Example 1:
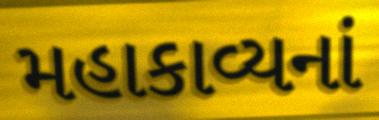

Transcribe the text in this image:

મહાકાવ્યનાં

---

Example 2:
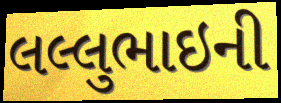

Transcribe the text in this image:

લલ્લુભાઇની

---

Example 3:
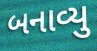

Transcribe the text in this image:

બનાવ્યુ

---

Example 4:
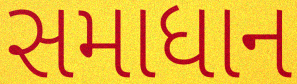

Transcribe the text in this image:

સમાધાન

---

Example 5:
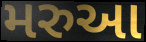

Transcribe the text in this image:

મરુઆ